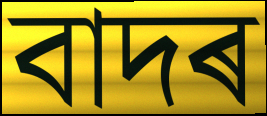
বাদৰ